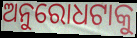
ଅନୁରୋଧଟାକୁ